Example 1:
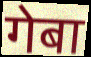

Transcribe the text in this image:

गेबा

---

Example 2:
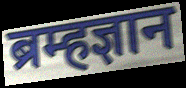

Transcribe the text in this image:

ब्रम्हज्ञान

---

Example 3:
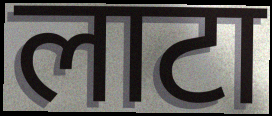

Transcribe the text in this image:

लाटा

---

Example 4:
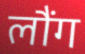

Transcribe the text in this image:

लौंग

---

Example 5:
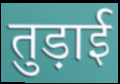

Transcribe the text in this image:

तुड़ाई